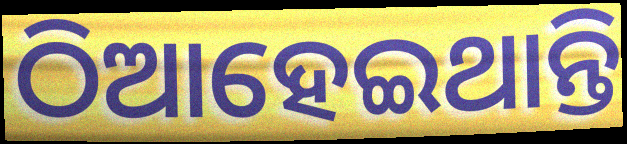
ଠିଆହେଇଥାନ୍ତି